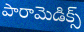
పారామెడిక్స్